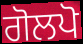
ਗੋਲਪੋ